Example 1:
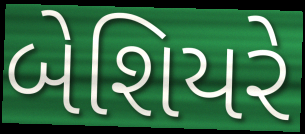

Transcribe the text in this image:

બેશિયરે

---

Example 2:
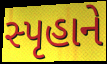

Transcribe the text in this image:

સ્પૃહાને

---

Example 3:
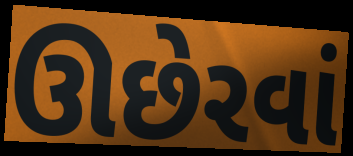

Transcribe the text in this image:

ઊછેરવાં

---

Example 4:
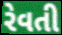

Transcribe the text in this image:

રેવતી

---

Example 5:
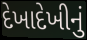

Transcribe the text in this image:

દેખાદેખીનું